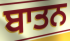
ਬਾਤਨ